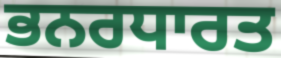
ਭਨਰਧਾਰਤ